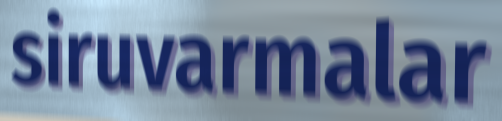
siruvarmalar